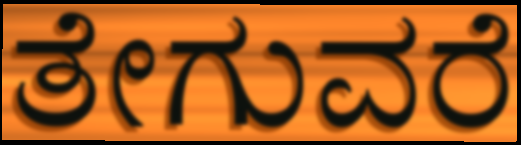
ತೇಗುವರೆ